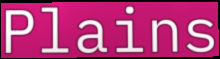
Plains